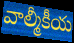
వాల్మీకీయ